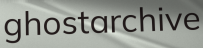
ghostarchive